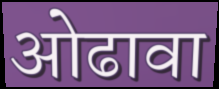
ओढावा